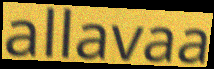
allavaa